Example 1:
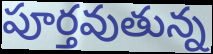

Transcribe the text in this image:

పూర్తవుతున్న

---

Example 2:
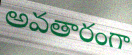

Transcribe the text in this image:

అవతారంగా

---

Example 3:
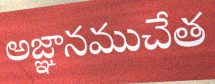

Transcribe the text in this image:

అజ్ఞానముచేత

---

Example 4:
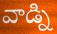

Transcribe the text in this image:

వాడ్ని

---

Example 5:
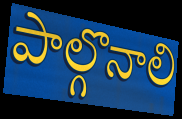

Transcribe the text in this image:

పాల్గొనాలి